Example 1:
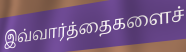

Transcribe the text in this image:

இவ்வார்த்தைகளைச்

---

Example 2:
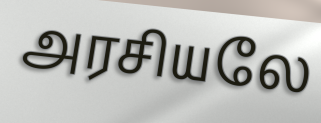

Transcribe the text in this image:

அரசியலே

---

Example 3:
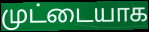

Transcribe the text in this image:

முட்டையாக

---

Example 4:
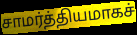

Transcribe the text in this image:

சாமர்த்தியமாகச்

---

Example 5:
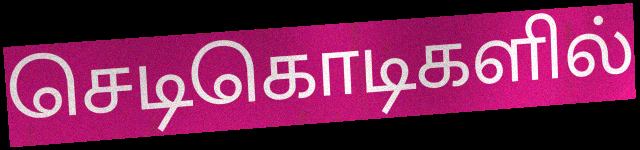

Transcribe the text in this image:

செடிகொடிகளில்